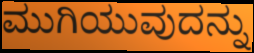
ಮುಗಿಯುವುದನ್ನು